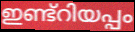
ഇണ്ട്റിയപ്പം